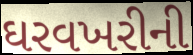
ઘરવખરીની